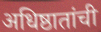
अधिष्ठातांची